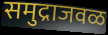
समुद्राजवळ